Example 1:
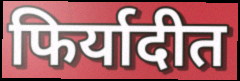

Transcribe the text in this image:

फिर्यादीत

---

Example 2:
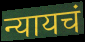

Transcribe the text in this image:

न्यायचं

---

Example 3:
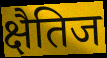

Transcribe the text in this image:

क्षैतिज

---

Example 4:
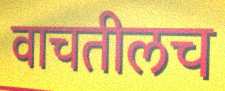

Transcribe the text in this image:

वाचतीलच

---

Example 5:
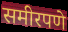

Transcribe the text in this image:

समीरपणे